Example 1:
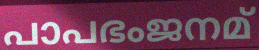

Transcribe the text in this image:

പാപഭംജനമ്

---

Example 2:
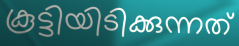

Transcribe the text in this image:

കൂട്ടിയിടിക്കുന്നത്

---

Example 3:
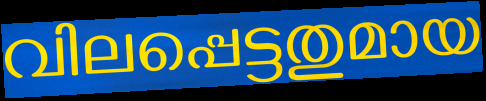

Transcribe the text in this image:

വിലപ്പെട്ടതുമായ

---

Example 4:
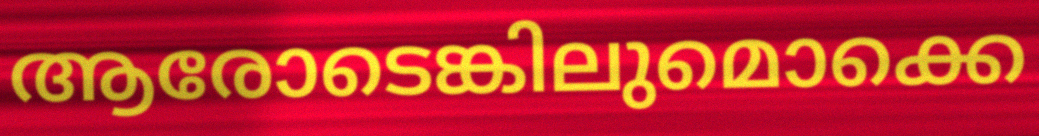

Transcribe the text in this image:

ആരോടെങ്കിലുമൊക്കെ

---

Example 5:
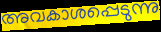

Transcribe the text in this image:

അവകാശപ്പെടുന്നു